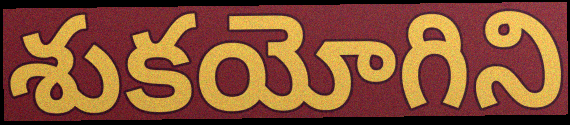
శుకయోగిని